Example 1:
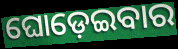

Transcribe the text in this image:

ଘୋଡ଼େଇବାର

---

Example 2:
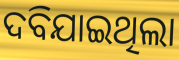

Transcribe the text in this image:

ଦବିଯାଇଥିଲା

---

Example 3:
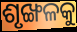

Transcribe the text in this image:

ଶୃଙ୍ଖଳକୁ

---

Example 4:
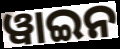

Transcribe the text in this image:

ୱାଇନ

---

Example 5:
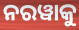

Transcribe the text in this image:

ନରୱାକୁ